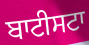
ਬਾਟੀਸਟਾ